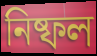
নিষ্ফল